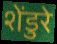
शेंडुरे